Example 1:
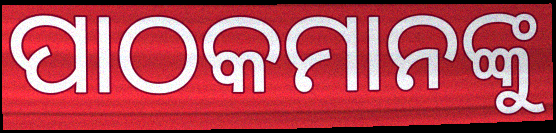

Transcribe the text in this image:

ପାଠକମାନଙ୍କୁ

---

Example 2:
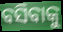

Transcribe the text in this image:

ବସିବାକୁ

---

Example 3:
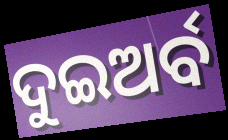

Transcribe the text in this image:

ଦୁଇଅର୍ବ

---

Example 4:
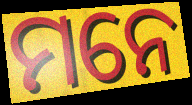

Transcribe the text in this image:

ମନେ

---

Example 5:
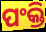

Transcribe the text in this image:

ପଂକ୍ତି